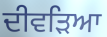
ਦੀਵੜਿਆ